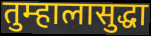
तुम्हालासुद्धा